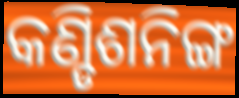
କଣ୍ଡିଶନିଙ୍ଗ